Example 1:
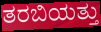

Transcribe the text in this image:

ತರಬಿಯತ್ತು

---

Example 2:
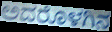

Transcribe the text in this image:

ಅದರೊಳಗಿನ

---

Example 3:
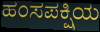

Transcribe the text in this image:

ಹಂಸಪಕ್ಷಿಯ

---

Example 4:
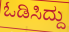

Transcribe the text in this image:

ಓಡಿಸಿದ್ದು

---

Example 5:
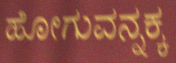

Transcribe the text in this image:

ಹೋಗುವನ್ನಕ್ಕ